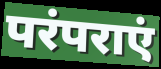
परंपराएं